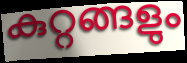
കുറ്റങ്ങളും